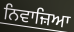
ਨਿਵਾਜ਼ਿਆ